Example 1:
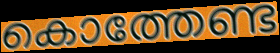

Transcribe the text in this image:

കൊത്തേണ്ട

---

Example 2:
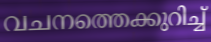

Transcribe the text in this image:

വചനത്തെക്കുറിച്ച്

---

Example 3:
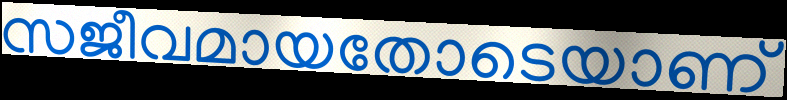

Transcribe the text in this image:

സജീവമായതോടെയാണ്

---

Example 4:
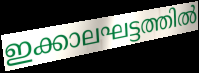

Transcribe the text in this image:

ഇക്കാലഘട്ടത്തിൽ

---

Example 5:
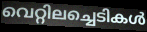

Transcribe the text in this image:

വെറ്റിലച്ചെടികൾ